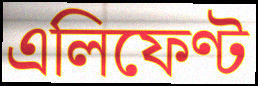
এলিফেণ্ট